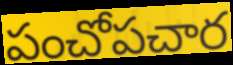
పంచోపచార